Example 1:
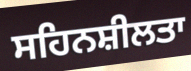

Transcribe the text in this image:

ਸਹਿਨਸ਼ੀਲਤਾ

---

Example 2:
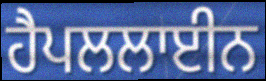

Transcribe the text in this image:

ਹੈਪਲਲਾਈਨ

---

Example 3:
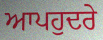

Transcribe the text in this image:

ਆਪਹੁਦਰੇ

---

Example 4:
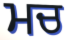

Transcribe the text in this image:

ਮਚ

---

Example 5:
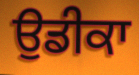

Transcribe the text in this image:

ਉਡੀਕਾ